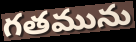
గతమును